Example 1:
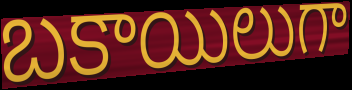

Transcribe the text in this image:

బకాయిలుగా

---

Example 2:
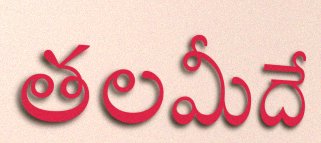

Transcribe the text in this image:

తలమీదే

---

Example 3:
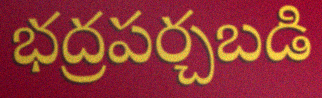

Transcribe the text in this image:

భద్రపర్చబడి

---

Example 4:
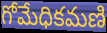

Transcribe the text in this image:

గోమేధికమణి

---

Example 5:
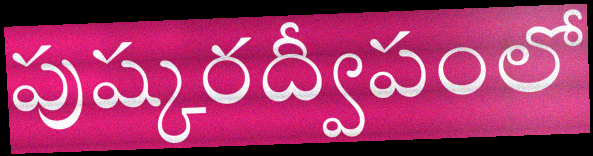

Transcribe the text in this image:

పుష్కరద్వీపంలో